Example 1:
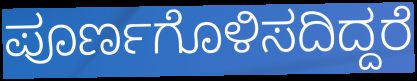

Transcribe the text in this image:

ಪೂರ್ಣಗೊಳಿಸದಿದ್ದರೆ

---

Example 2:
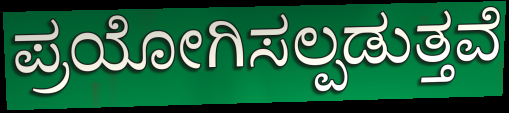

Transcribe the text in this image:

ಪ್ರಯೋಗಿಸಲ್ಪಡುತ್ತವೆ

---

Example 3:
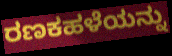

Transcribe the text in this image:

ರಣಕಹಳೆಯನ್ನು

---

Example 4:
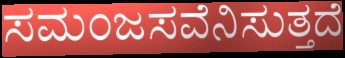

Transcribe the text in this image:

ಸಮಂಜಸವೆನಿಸುತ್ತದೆ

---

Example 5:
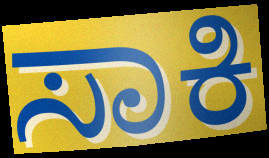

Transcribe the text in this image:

ಸಾಕಿ